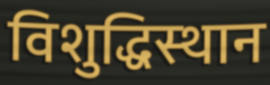
विशुद्धिस्थान